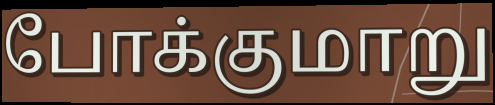
போக்குமாறு